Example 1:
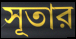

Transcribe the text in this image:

সূতার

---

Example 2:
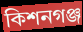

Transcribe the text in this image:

কিশনগঞ্জ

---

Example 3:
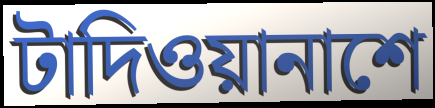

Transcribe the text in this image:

টাদিওয়ানাশে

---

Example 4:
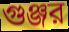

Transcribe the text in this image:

গুঞ্জর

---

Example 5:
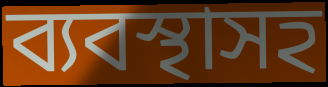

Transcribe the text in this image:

ব্যবস্থাসহ